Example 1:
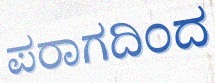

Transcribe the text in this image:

ಪರಾಗದಿಂದ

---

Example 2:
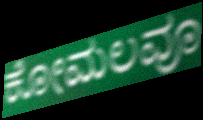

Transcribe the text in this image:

ಕೋಮಲವೂ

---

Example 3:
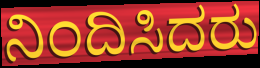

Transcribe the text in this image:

ನಿಂದಿಸಿದರು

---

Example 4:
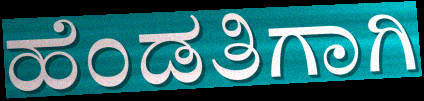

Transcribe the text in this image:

ಹೆಂಡತಿಗಾಗಿ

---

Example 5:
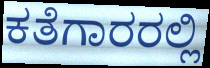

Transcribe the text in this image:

ಕತೆಗಾರರಲ್ಲಿ